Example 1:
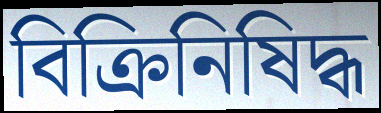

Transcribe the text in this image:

বিক্রিনিষিদ্ধ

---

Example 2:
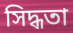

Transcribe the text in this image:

সিদ্ধতা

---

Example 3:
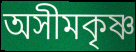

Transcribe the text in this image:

অসীমকৃষ্ণ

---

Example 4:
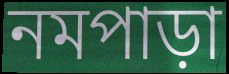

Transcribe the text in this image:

নমপাড়া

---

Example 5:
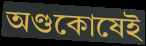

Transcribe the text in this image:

অণ্ডকোষেই